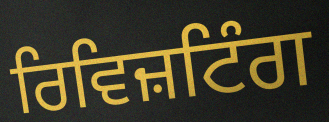
ਰਿਵਿਜ਼ਟਿੰਗ